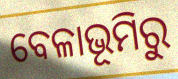
ବେଳାଭୂମିରୁ